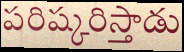
పరిష్కరిస్తాడు